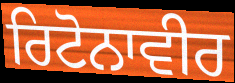
ਰਿਟੋਨਾਵੀਰ